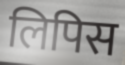
लिपिस